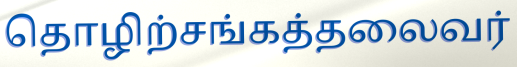
தொழிற்சங்கத்தலைவர்